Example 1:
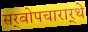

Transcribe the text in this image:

सर्वोपचारार्थे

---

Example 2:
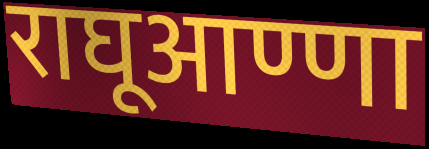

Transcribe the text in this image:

राघूआण्णा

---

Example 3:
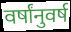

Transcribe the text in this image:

वर्षांनुवर्ष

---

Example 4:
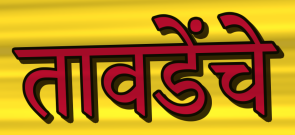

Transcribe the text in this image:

तावडेंचे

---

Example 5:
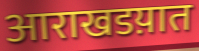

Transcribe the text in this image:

आराखडय़ात